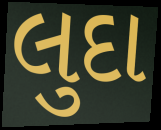
લુદા